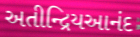
અતીન્દ્રિયઆનંદ